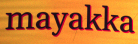
mayakka